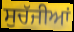
ਸੁਚੱਜੀਆਂ